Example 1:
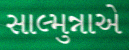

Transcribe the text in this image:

સાલ્મુન્નાએ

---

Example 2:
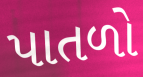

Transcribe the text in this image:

પાતળો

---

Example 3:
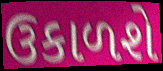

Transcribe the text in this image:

ઉકાળશે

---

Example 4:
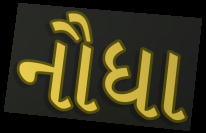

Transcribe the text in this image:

નૌધા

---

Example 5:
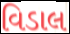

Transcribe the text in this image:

વિડાલ